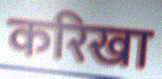
करिखा